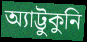
অ্যাট্টুকুনি